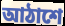
আঠাশে